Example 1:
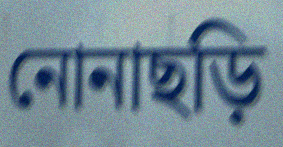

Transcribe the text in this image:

নোনাছড়ি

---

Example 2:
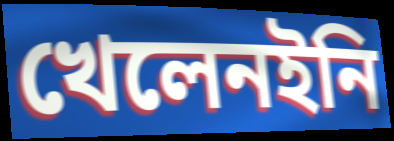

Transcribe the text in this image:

খেলেনইনি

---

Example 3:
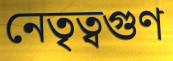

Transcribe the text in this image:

নেতৃত্বগুণ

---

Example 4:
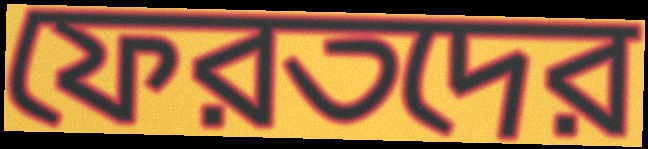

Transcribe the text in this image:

ফেরতদের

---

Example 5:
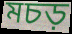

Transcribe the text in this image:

মচড়